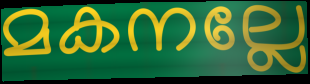
മകനല്ലേ